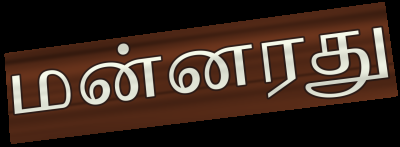
மன்னரது